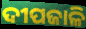
ଦୀପଜାଳି